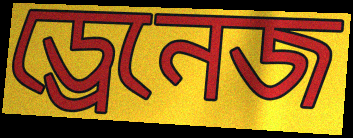
ড্রেনেজ